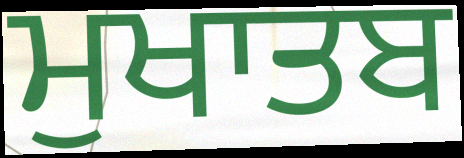
ਮੁਖਾਤਬ